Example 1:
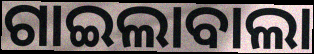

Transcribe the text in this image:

ଗାଇଲାବାଲା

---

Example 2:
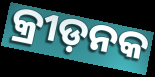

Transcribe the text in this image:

କ୍ରୀଡ଼ନକ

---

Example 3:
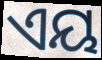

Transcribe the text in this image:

ଏୟ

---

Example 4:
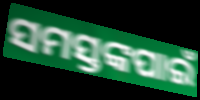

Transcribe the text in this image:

ସମସ୍ତଙ୍କପାଇଁ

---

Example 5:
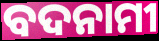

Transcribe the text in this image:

ବଦନାମୀ